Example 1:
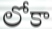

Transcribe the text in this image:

లోకా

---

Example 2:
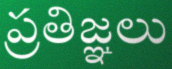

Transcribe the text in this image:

ప్రతిజ్ఞలు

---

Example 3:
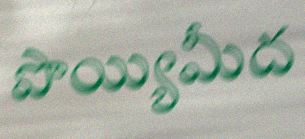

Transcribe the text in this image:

పొయ్యిమీద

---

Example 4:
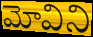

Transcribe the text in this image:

మోవిని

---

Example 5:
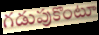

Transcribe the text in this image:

గడుపుకొంటూ